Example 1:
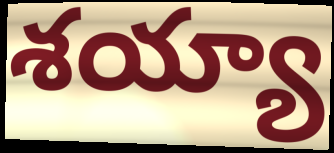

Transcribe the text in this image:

శయ్యా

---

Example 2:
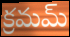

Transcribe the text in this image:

క్రమమ్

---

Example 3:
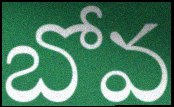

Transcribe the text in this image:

బోవ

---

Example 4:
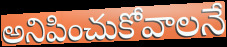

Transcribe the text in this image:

అనిపించుకోవాలనే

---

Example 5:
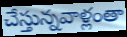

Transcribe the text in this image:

చేస్తున్నవాళ్లంతా